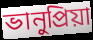
ভানুপ্রিয়া